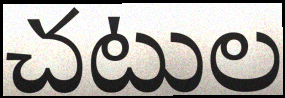
చటుల